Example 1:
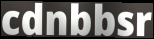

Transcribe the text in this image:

cdnbbsr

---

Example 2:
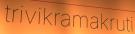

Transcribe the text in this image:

trivikramakruti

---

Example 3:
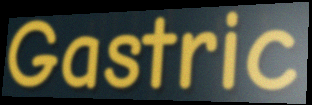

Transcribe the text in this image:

Gastric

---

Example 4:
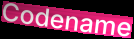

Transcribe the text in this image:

Codename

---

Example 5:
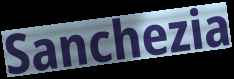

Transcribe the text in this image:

Sanchezia